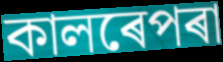
কালৰেপৰা